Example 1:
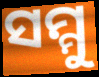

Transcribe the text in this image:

ସମ୍ମୁ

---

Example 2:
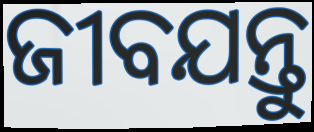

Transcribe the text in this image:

ଜୀବଯନ୍ତୁ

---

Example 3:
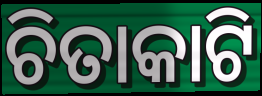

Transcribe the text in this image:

ଚିତାକାଟି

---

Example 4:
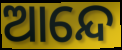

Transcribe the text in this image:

ଆନ୍ଦେ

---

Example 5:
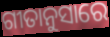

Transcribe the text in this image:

ଗୀତାନୁସାରେ